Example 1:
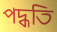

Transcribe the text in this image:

পদ্ধতি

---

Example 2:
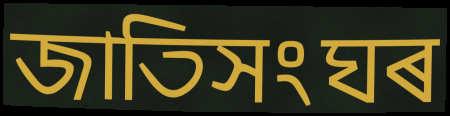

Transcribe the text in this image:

জাতিসংঘৰ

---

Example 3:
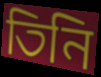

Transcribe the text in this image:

তিনি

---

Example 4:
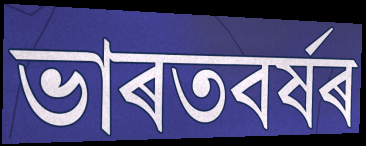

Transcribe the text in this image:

ভাৰতবৰ্ষৰ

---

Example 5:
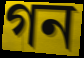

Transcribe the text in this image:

গন